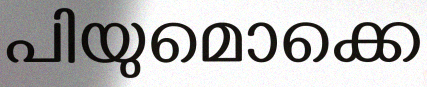
പിയുമൊക്കെ